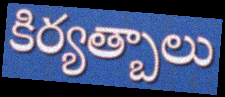
కిర్యత్బాలు